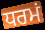
ਧਰਮਂ